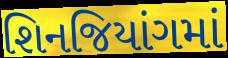
શિનજિયાંગમાં